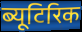
ब्यूटिरिक